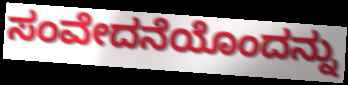
ಸಂವೇದನೆಯೊಂದನ್ನು